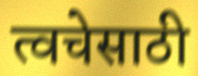
त्वचेसाठी